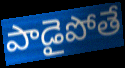
పాడైపోతే